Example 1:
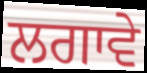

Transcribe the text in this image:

ਲਗਾਵੇ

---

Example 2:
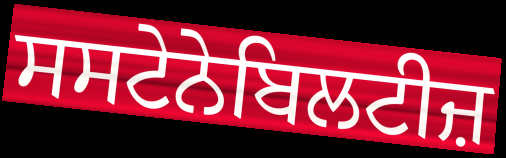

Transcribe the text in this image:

ਸਸਟੇਨੇਬਿਲਟੀਜ਼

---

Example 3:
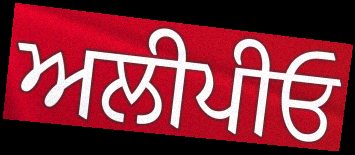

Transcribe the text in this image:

ਅਲੀਪੀਓ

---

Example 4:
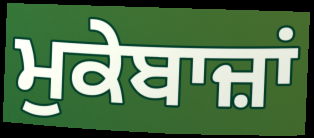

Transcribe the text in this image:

ਮੁਕੇਬਾਜ਼ਾਂ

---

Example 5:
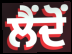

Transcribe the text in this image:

ਲੈਂਦੋਂ